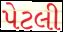
પેટલી